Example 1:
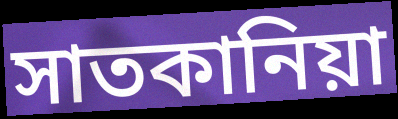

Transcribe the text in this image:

সাতকানিয়া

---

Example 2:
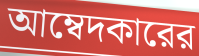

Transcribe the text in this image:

আম্বেদকারের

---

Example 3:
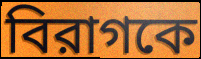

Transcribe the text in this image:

বিরাগকে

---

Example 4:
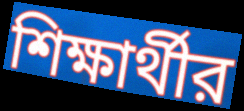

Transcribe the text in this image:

শিক্ষার্থীর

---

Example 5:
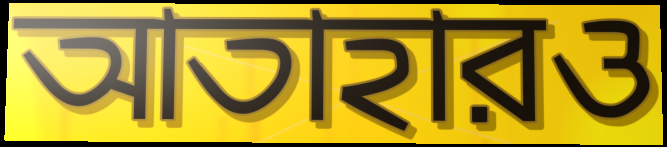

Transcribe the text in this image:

আতাহারও